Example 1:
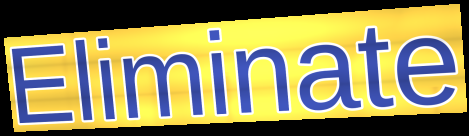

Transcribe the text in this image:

Eliminate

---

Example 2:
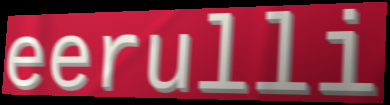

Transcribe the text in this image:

eerulli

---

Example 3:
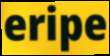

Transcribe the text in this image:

eripe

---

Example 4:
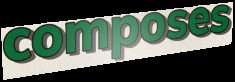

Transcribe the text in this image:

composes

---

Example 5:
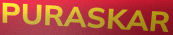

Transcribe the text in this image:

PURASKAR